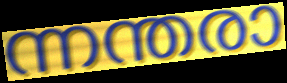
ന്നന്തരാ